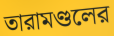
তারামণ্ডলের